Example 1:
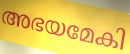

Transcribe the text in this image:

അഭയമേകി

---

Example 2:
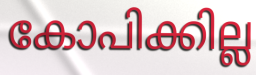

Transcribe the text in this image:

കോപിക്കില്ല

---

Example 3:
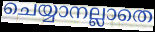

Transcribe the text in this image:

ചെയ്യാനല്ലാതെ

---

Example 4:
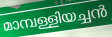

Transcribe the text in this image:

മാമ്പള്ളിയച്ചൻ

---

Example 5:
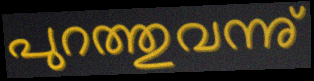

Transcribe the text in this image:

പുറത്തുവന്നു്